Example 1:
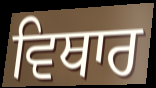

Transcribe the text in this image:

ਵਿਥਾਰ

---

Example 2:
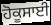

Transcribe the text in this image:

ਹੋਕੂਸਾਈ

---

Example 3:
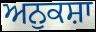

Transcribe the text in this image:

ਅਨੁਕਸ਼ਾ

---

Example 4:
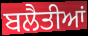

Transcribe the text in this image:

ਬਲੈਤੀਆਂ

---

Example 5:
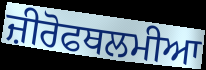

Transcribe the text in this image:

ਜ਼ੀਰੋਫਥਲਮੀਆ